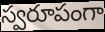
స్వరూపంగా